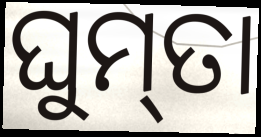
ଘୁମ୍‌ତା